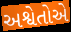
અશ્વેતોએ